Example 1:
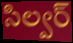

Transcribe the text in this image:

సిల్వర్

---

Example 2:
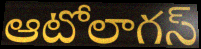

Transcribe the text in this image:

ఆటోలాగస్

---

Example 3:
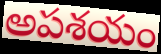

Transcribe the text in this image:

అపశయం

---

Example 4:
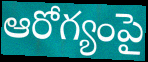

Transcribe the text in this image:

ఆరోగ్యంపై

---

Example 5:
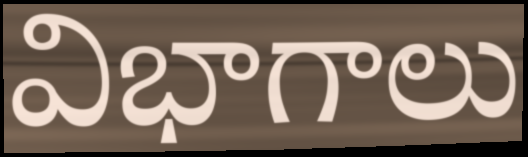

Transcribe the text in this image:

విభాగాలు